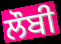
ਲੌਬੀ